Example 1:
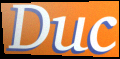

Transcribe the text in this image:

Duc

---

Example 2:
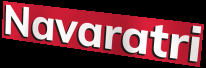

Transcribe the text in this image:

Navaratri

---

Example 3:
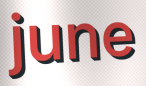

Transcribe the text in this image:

june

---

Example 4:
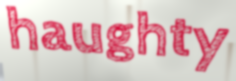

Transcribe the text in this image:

haughty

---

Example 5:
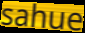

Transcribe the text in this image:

sahue